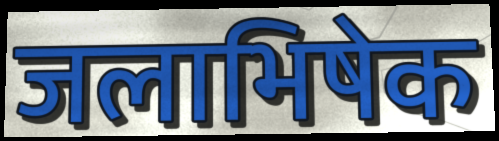
जलाभिषेक